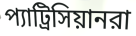
প্যাট্রিসিয়ানরা